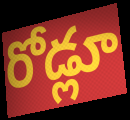
రోడ్లూ